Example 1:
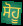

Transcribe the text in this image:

ਸੋਹੂ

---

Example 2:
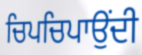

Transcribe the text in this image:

ਚਿਪਚਿਪਾਉਂਦੀ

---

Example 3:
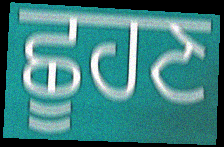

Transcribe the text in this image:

ਛੂਹਣ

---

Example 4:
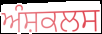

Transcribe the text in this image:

ਅੰਸ਼ਕਲਸ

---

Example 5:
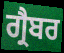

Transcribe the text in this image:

ਗ੍ਰੈਬਰ